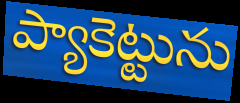
ప్యాకెట్టును